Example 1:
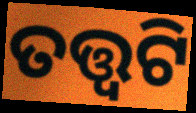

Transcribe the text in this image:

ତତ୍ତ୍ଵଟି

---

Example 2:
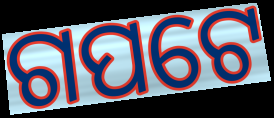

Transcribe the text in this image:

ଗପଟେ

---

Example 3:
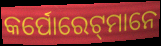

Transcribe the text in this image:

କର୍ପୋରେଟ୍‌ମାନେ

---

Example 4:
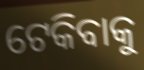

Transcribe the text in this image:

ଟେକିବାକୁ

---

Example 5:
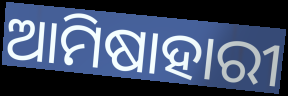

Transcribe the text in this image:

ଆମିଷାହାରୀ